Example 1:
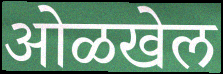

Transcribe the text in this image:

ओळखेल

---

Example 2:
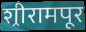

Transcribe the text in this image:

श्रीरामपूर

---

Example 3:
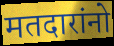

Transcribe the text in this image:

मतदारांनो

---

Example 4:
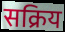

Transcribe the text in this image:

सक्रिय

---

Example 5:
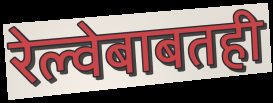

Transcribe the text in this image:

रेल्वेबाबतही